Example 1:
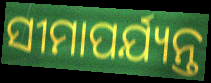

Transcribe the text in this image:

ସୀମାପର୍ଯ୍ୟନ୍ତ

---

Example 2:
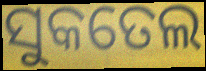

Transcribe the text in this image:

ସୁକତେଲ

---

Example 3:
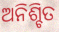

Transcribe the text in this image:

ଅନିଶ୍ଚିତ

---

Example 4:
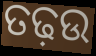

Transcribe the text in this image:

ତଢ଼ଉ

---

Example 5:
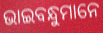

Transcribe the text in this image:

ଭାଇବନ୍ଧୁମାନେ